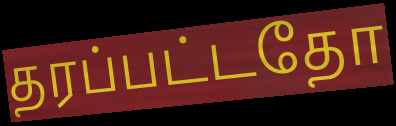
தரப்பட்டதோ